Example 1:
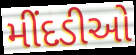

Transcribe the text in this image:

મીંદડીઓ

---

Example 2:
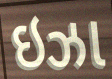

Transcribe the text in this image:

ઇઝા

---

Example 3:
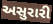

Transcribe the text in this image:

અસુરારી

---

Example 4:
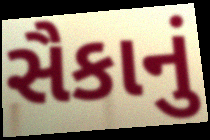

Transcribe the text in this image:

સૈકાનું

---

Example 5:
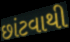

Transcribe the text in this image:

છાંટવાથી